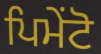
ਪਿਮੇਂਟੋ